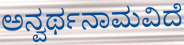
ಅನ್ವರ್ಥನಾಮವಿದೆ